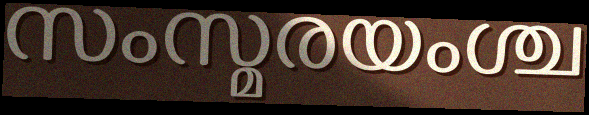
സംസ്മരയംശ്ച